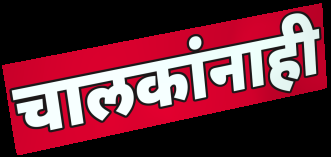
चालकांनाही